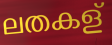
ലതകള്